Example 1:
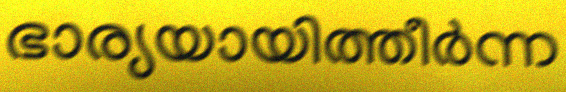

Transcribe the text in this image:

ഭാര്യയായിത്തീർന്ന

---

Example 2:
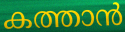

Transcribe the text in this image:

കത്താൻ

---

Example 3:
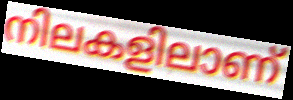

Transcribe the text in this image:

നിലകളിലാണ്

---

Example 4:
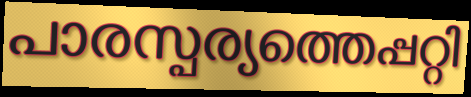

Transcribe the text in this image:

പാരസ്പര്യത്തെപ്പറ്റി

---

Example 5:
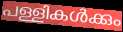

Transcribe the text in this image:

പള്ളികൾക്കും